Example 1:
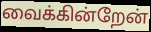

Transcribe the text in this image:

வைக்கின்றேன்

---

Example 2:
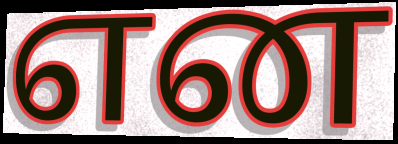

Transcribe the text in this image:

என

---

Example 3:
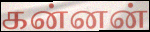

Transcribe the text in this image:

கன்னன்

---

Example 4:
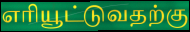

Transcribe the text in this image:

எரியூட்டுவதற்கு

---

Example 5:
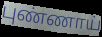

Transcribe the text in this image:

புண்ணாய்